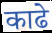
काढे